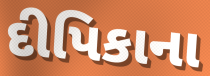
દીપિકાના